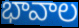
భావాల